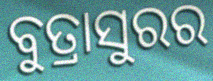
ବୁତ୍ରାସୁରର